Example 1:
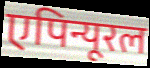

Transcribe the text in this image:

एपिन्यूरल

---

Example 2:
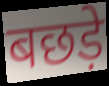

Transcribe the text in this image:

बछड़े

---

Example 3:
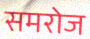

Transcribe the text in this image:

समरोज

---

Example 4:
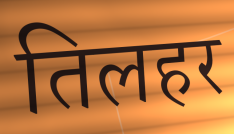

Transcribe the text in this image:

तिलहर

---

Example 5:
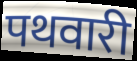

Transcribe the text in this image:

पथवारी